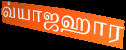
வ்யாஜஹார